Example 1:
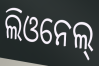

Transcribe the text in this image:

ଲିଓନେଲ୍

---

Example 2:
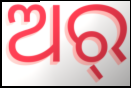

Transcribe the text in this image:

ଅର୍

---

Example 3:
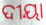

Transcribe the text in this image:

ଦୀୟା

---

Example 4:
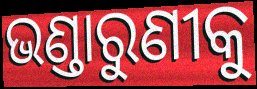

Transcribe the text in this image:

ଭଣ୍ଡାରୁଣୀକୁ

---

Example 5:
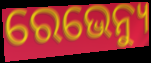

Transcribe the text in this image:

ରେଭେନ୍ୟୁ